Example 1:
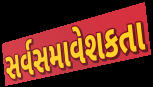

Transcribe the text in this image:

સર્વસમાવેશકતા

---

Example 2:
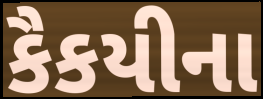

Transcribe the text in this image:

કૈકયીના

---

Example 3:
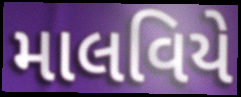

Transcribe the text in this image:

માલવિયે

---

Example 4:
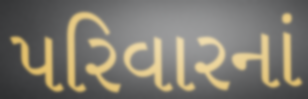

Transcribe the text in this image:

પરિવારનાં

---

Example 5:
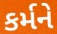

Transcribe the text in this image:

કર્મને